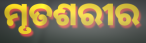
ମୃତଶରୀର